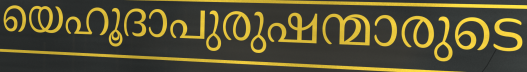
യെഹൂദാപുരുഷന്മാരുടെ